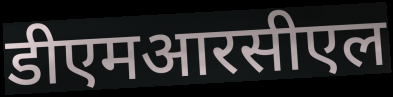
डीएमआरसीएल